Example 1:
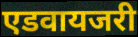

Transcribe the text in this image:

एडवायजरी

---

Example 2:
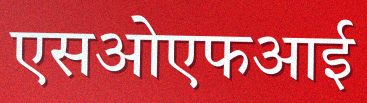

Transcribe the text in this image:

एसओएफआई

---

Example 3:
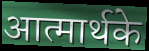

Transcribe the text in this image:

आत्मार्थके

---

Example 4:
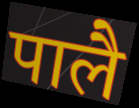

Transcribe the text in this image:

पालै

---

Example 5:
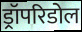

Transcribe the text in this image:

ड्रॉपरिडोल